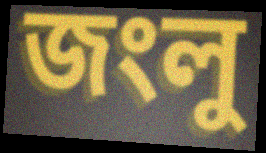
জংলু